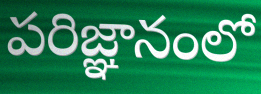
పరిజ్ఞానంలో